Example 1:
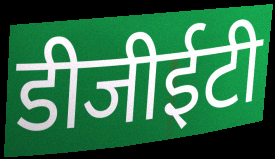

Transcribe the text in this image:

डीजीईटी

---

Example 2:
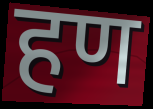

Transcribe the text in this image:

हण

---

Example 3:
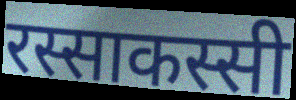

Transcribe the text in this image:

रस्साकस्सी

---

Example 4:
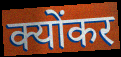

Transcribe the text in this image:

क्योंकर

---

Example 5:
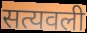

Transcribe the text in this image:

सत्यवली